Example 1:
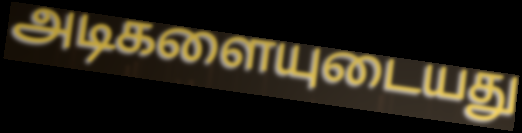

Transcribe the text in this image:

அடிகளையுடையது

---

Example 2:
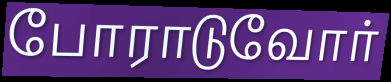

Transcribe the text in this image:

போராடுவோர்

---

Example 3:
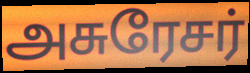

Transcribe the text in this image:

அசுரேசர்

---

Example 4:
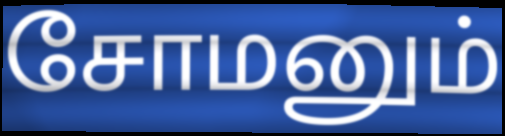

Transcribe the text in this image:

சோமனும்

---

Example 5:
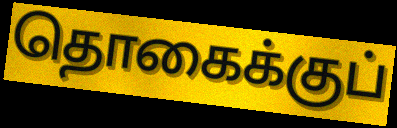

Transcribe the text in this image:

தொகைக்குப்